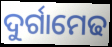
ଦୁର୍ଗାମେଢ